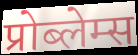
प्रोब्लेम्स